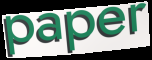
paper